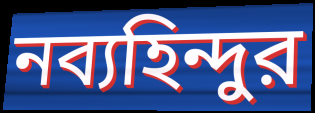
নব্যহিন্দুর